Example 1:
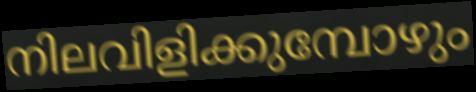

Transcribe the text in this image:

നിലവിളിക്കുമ്പോഴും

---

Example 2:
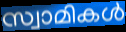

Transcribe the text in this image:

സ്വാമികൾ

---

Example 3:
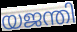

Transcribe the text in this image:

യജന്തി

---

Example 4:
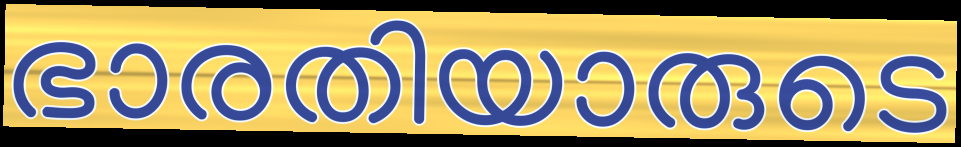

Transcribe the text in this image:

ഭാരതിയാരുടെ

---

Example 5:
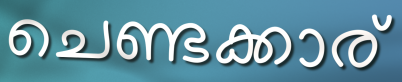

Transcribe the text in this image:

ചെണ്ടക്കാര്